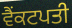
ਵੈਂਕਟਪਤੀ